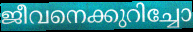
ജീവനെക്കുറിച്ചോ